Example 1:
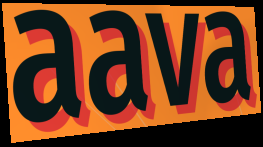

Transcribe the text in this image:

aava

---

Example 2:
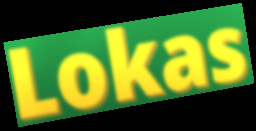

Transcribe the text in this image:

Lokas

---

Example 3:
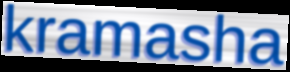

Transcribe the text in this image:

kramasha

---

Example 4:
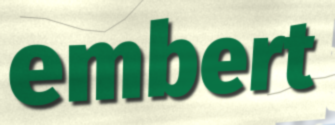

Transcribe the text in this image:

embert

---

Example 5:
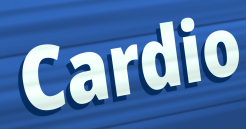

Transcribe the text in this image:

Cardio